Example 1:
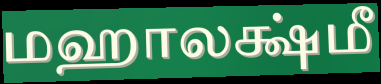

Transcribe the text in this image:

மஹாலக்ஷ்மீ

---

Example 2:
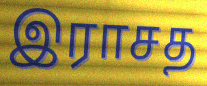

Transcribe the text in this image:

இராசத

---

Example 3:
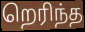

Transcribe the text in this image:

றெரிந்த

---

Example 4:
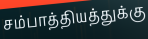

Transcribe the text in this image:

சம்பாத்தியத்துக்கு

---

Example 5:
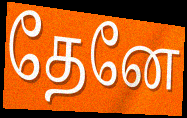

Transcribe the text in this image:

தேனே